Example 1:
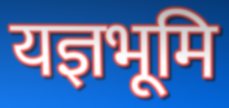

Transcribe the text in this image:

यज्ञभूमि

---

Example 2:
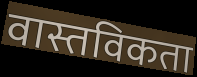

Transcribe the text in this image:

वास्तविकता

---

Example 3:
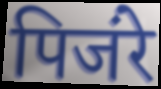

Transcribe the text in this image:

पिजंरे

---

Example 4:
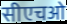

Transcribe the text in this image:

सीएचओ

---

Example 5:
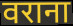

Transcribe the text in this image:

वराना